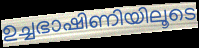
ഉച്ചഭാഷിണിയിലൂടെ